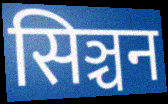
सिञ्चन